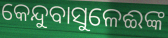
କେନ୍ଦୁବାସୁଳେଈଙ୍କ